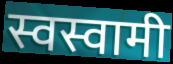
स्वस्वामी